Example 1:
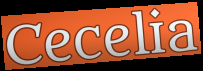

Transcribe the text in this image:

Cecelia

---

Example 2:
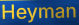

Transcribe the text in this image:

Heyman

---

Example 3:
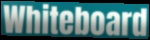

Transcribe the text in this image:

Whiteboard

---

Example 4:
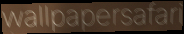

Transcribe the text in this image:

wallpapersafari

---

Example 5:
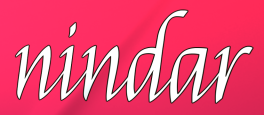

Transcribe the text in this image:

nindar